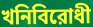
খনিবিরোধী